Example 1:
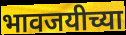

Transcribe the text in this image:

भावजयीच्या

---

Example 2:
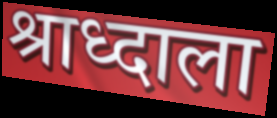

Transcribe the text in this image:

श्राध्दाला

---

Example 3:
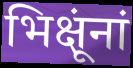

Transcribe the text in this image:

भिक्षूंनां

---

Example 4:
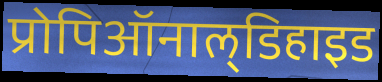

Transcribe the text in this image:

प्रोपिऑनाल्डिहाइड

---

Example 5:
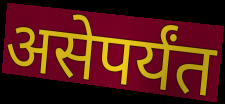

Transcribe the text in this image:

असेपर्यंत